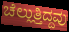
ಚೆಲ್ಲುತ್ತಿದ್ದವು